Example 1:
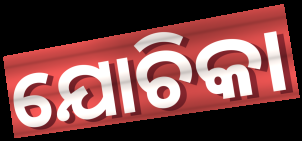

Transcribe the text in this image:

ଯୋଚିକା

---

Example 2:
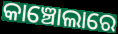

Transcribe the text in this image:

କାଞ୍ଚୋଲାରେ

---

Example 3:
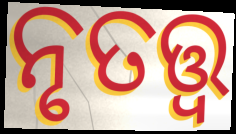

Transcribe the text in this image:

ନୃତତ୍ତ୍ଵ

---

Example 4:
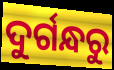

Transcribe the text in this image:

ଦୁର୍ଗନ୍ଧରୁ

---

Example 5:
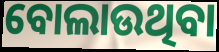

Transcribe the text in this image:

ବୋଲାଉଥିବା